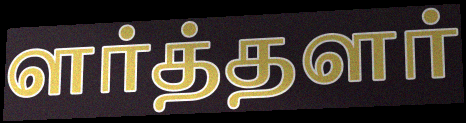
ளர்த்தளர்